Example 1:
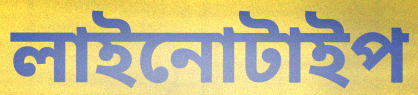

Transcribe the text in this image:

লাইনোটাইপ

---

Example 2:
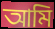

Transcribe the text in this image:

আমি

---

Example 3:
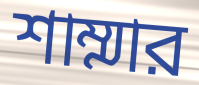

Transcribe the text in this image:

শাম্মার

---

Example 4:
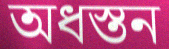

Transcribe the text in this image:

অধস্তন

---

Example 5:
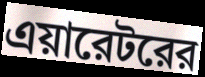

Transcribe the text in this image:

এয়ারেটরের